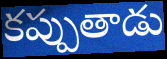
కప్పుతాడు